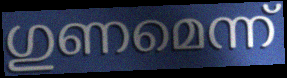
ഗുണമെന്ന്